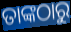
ତାଙ୍କଠାରୁ